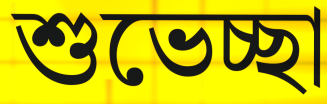
শুভেচ্ছা